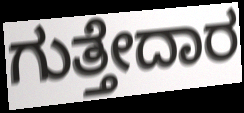
ಗುತ್ತೇದಾರ